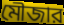
মৌজার